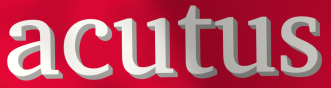
acutus